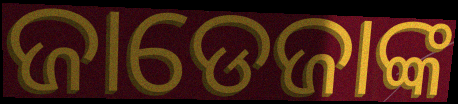
ଜାଡେଜାଙ୍କ